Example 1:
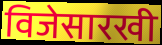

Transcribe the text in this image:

विजेसारखी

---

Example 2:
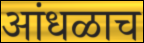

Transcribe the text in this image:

आंधळाच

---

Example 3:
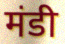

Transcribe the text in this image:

मंडी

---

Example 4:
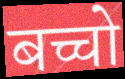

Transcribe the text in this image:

बच्चो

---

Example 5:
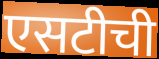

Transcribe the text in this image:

एसटीची